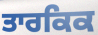
ਤਾਰਕਿਕ